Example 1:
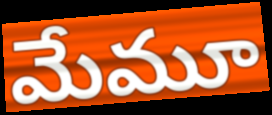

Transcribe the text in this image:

మేమూ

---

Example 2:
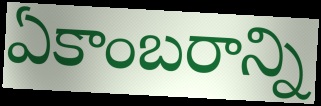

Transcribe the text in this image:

ఏకాంబరాన్ని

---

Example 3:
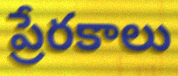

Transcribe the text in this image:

ప్రేరకాలు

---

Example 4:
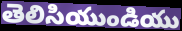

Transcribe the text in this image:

తెలిసియుండియు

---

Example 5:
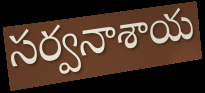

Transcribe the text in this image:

సర్వనాశాయ